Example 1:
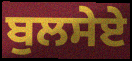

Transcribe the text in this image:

ਬੁਲਸੇਏ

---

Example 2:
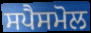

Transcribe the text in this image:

ਸਪੈਸਮੋਲ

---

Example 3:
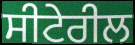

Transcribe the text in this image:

ਸੀਟੇਰੀਲ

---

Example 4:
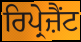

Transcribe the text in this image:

ਰਿਪ੍ਰੇਜ਼ੈਂਟ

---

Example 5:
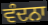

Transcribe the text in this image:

ਵੰਦਨਾ